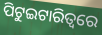
ପିଟୁଇଟାରିତ୍ୱରେ